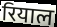
रियाल